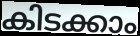
കിടക്കാം